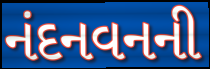
નંદનવનની